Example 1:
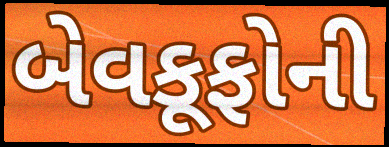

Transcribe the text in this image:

બેવકૂફોની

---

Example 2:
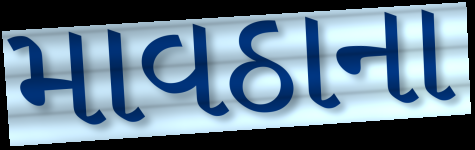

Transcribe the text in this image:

માવઠાના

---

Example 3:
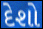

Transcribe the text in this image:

દેશો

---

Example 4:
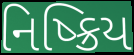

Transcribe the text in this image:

નિષ્ક્રિય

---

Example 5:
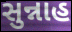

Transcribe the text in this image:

સુન્નાહ